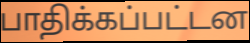
பாதிக்கப்பட்டன